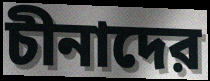
চীনাদের